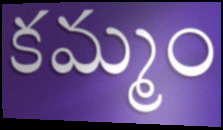
కమ్మం